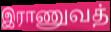
இராணுவத்